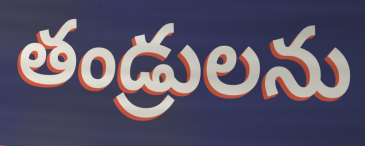
తండ్రులను